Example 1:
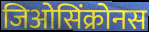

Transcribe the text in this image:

जिओसिंक्रोनस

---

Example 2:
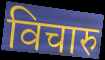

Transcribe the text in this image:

विचारु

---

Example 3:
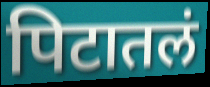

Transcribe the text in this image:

पिटातलं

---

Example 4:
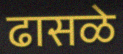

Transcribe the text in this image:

ढासळे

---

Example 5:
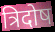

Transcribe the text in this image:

त्रिदोष